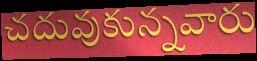
చదువుకున్నవారు